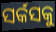
ସର୍କସକୁ